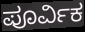
ಪೂರ್ವಿಕ